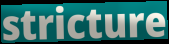
stricture